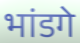
भांडगे